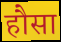
हौसा